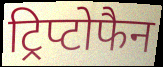
ट्रिप्टोफैन